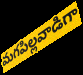
మగపిల్లవాడిగా